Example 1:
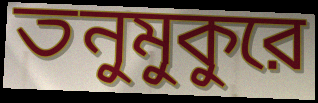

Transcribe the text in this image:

তনুমুকুরে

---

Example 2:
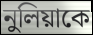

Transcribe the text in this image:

নুলিয়াকে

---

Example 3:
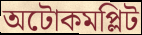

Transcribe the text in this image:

অটোকমপ্লিট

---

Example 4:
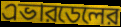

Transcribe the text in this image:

এভারডেলের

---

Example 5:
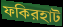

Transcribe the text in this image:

ফকিরহাট